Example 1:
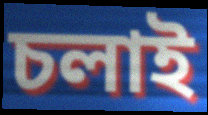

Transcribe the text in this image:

চলাই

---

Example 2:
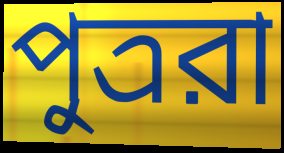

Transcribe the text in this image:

পুত্ররা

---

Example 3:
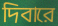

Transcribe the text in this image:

দিবারে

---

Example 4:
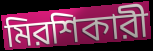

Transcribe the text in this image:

মিরশিকারী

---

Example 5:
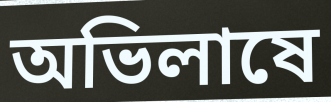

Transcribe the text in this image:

অভিলাষে